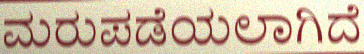
ಮರುಪಡೆಯಲಾಗಿದೆ